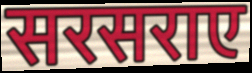
सरसराए